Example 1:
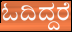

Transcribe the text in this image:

ಓದಿದ್ದರೆ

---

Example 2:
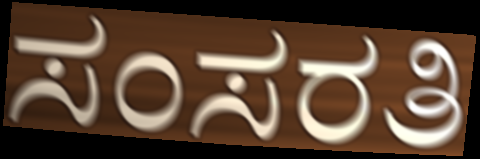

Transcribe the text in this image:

ಸಂಸರತಿ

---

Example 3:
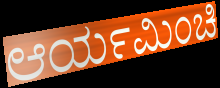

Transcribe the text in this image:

ಆರ್ಯಮಿಂಚಿ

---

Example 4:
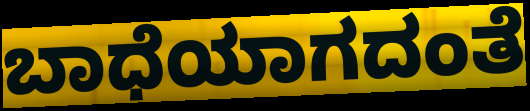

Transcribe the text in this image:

ಬಾಧೆಯಾಗದಂತೆ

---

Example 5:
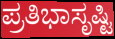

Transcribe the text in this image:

ಪ್ರತಿಭಾಸೃಷ್ಟಿ